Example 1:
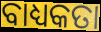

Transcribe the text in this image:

ବାଧ୍ୟକତା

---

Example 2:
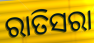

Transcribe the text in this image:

ରାତିସରା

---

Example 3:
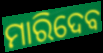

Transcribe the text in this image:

ମାରିଦେବ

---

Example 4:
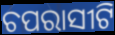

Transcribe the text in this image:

ଚପରାସୀଟି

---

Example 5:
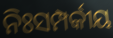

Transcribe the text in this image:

ନିଃସମ୍ପର୍କୀୟ